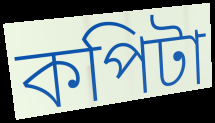
কপিটা